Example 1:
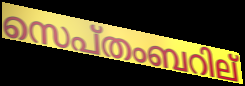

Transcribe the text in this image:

സെപ്തംബറില്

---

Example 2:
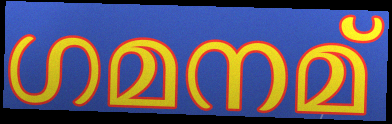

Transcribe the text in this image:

ഗമനമ്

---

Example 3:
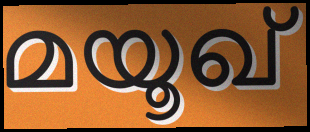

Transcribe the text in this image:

മയൂഖ്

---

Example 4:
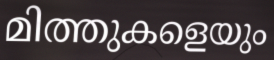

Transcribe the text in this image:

മിത്തുകളെയും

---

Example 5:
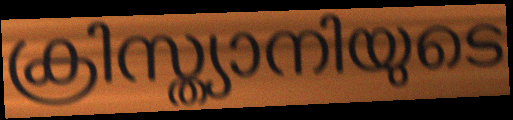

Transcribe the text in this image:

ക്രിസ്ത്യാനിയുടെ